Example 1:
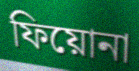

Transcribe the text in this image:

ফিয়োনা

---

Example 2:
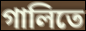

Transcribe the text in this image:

গালিতে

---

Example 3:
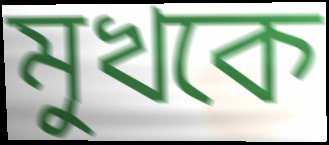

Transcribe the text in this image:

মুখকে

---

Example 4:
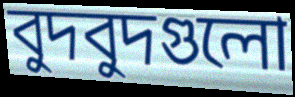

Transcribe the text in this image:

বুদবুদগুলো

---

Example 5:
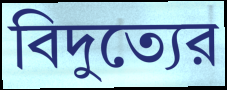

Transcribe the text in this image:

বিদুত্যের